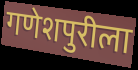
गणेशपुरीला